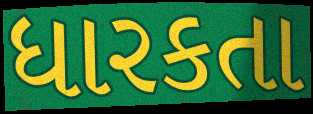
ધારકતા